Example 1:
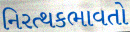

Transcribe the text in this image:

નિરત્થકભાવતો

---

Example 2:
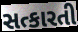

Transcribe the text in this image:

સત્કારતી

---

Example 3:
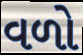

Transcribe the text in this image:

વળો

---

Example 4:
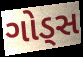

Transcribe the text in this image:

ગોડ્સ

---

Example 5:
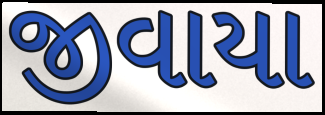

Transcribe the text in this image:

જીવાયા